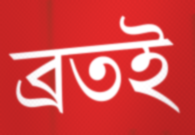
ব্রতই